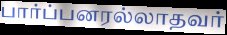
பார்ப்பனரல்லாதவர்